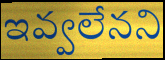
ఇవ్వలేనని